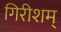
गिरीशम्